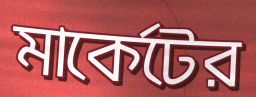
মার্কেটের